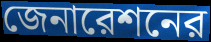
জেনারেশনের